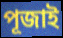
পূজাই